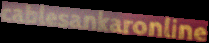
cablesankaronline